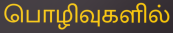
பொழிவுகளில்